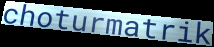
choturmatrik